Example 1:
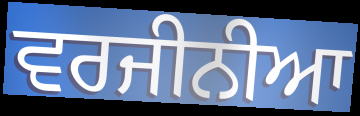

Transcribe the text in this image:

ਵਰਜੀਨੀਆ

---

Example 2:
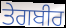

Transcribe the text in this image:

ਤੇਗਬੀਰ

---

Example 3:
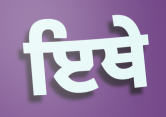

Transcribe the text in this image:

ਇਥੇ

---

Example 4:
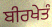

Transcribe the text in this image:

ਬੀਰਖੇਤੰ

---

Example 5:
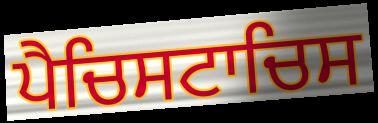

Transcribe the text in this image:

ਪੈਚਿਸਟਾਚਿਸ